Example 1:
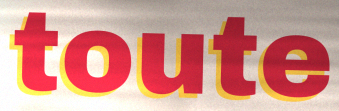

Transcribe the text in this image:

toute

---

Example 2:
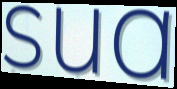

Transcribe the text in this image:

sua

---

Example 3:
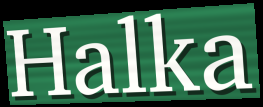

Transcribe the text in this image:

Halka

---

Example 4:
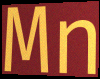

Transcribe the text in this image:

Mn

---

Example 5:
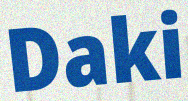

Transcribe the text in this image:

Daki